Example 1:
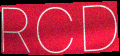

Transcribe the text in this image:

RCD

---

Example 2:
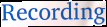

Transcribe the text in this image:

Recording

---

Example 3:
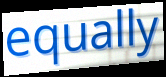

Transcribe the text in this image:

equally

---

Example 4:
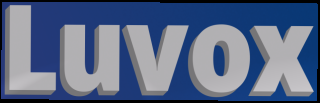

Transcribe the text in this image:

Luvox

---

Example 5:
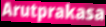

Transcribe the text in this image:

Arutprakasa